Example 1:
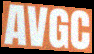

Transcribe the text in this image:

AVGC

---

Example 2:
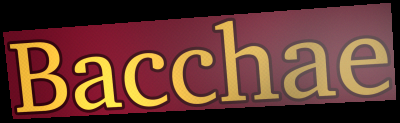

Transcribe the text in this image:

Bacchae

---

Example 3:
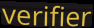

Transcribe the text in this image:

verifier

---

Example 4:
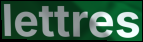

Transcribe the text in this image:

lettres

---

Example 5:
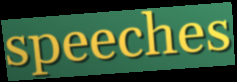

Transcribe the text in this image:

speeches